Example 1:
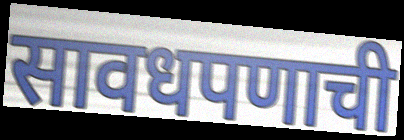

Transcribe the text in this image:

सावधपणाची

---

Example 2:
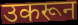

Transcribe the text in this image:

उकरून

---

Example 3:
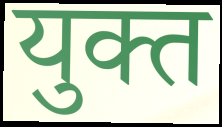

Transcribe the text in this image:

युक्त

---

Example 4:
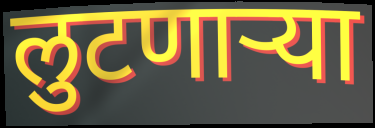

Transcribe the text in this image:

लुटणाऱ्या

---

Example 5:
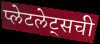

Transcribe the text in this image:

प्लेटलेट्‌सची